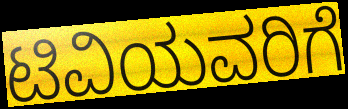
ಟಿವಿಯವರಿಗೆ